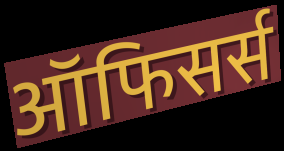
ऑफिसर्स